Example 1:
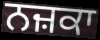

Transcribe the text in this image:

ਨਜ਼ਕਾ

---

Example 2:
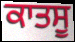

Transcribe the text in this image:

ਕਾਤਸੂ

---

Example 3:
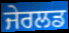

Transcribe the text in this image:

ਜੇਰਲਡ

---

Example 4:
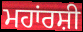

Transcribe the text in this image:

ਮਹਾਂਰਸ਼ੀ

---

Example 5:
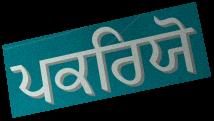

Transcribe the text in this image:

ਪਕਰਿਯੋ